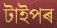
টাইপৰ